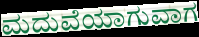
ಮದುವೆಯಾಗುವಾಗ